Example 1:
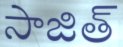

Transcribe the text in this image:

సాజిత్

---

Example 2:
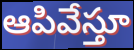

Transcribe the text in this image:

ఆపివేస్తూ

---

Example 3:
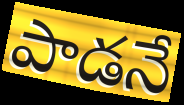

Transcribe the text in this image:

పాడనే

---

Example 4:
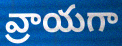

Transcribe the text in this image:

వ్రాయగా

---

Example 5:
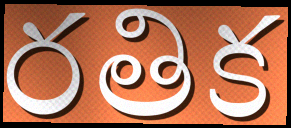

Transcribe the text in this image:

రతిక